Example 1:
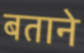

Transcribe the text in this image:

बताने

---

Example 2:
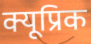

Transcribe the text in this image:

क्यूप्रिक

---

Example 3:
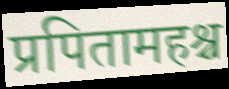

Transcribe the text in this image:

प्रपितामहश्च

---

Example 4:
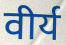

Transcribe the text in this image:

वीर्य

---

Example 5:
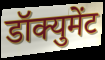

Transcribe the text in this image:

डॉक्युमेंट